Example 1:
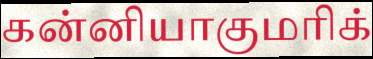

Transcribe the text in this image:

கன்னியாகுமரிக்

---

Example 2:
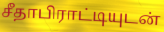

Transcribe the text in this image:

சீதாபிராட்டியுடன்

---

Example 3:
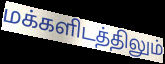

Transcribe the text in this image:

மக்களிடத்திலும்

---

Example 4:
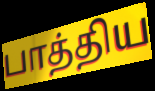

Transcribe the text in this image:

பாத்திய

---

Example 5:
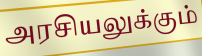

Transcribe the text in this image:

அரசியலுக்கும்